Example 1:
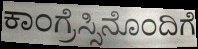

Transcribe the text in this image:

ಕಾಂಗ್ರೆಸ್ಸಿನೊಂದಿಗೆ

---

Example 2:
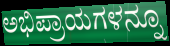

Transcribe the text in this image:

ಅಭಿಪ್ರಾಯಗಳನ್ನೂ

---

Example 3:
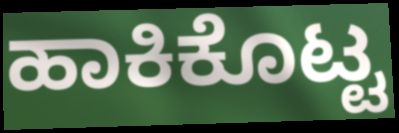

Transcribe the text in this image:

ಹಾಕಿಕೊಟ್ಟ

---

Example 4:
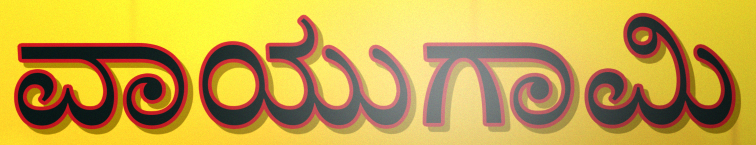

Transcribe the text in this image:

ವಾಯುಗಾಮಿ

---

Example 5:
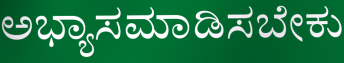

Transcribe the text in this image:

ಅಭ್ಯಾಸಮಾಡಿಸಬೇಕು